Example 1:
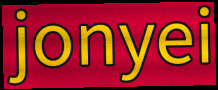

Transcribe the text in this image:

jonyei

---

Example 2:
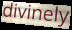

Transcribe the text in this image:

divinely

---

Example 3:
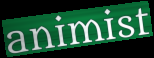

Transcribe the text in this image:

animist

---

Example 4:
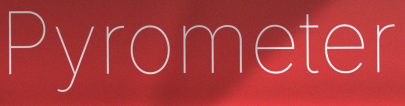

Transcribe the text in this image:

Pyrometer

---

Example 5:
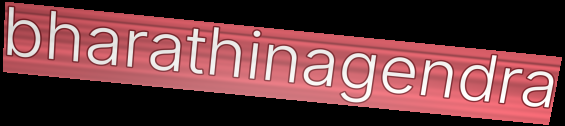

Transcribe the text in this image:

bharathinagendra